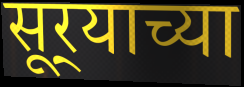
सूर्याच्या